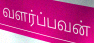
வளர்ப்பவன்